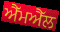
ਐੱਮਐੱਲ